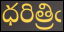
ధరిత్రిఁ